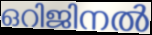
ഒറിജിനൽ